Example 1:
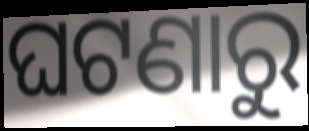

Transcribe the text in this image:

ଘଟଣାରୁ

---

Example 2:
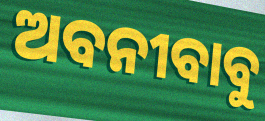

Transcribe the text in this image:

ଅବନୀବାବୁ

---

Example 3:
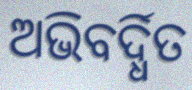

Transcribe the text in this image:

ଅଭିବର୍ଦ୍ଧିତ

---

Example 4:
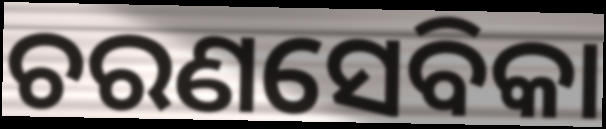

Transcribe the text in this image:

ଚରଣସେବିକା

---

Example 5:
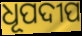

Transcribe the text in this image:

ଧୂପଦୀପ